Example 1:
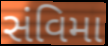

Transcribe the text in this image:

સંવિમા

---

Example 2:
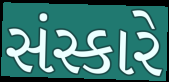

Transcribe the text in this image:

સંસ્કારે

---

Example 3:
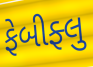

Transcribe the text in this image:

ફેબીફ્લુ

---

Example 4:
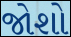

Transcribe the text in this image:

જોશો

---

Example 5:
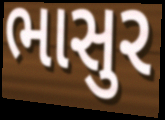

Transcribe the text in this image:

ભાસુર